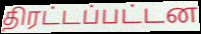
திரட்டப்பட்டன